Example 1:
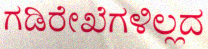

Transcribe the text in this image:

ಗಡಿರೇಖೆಗಳಿಲ್ಲದ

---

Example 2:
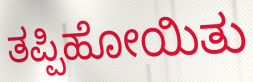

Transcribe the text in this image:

ತಪ್ಪಿಹೋಯಿತು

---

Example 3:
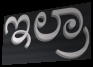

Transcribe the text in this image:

ಇಲ್ರಾ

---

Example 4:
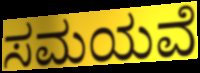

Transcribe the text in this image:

ಸಮಯವೆ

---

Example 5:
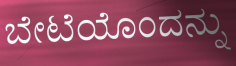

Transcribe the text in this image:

ಬೇಟೆಯೊಂದನ್ನು